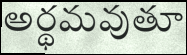
అర్థమవుతూ